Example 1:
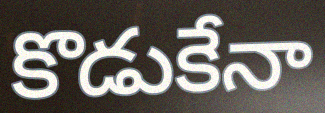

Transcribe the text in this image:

కొడుకేనా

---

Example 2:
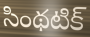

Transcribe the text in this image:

సింథటిక్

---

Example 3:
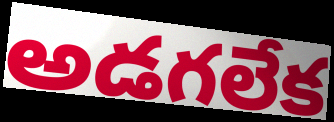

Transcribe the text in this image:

అడగలేక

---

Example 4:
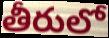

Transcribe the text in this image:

తీరులో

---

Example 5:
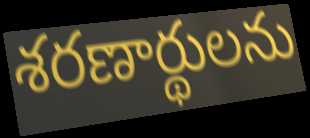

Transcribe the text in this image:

శరణార్థులను